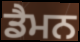
ਡੈਮਨ